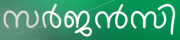
സർജൻസി